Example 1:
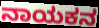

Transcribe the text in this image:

ನಾಯಕನ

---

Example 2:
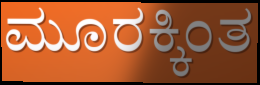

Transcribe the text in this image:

ಮೂರಕ್ಕಿಂತ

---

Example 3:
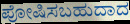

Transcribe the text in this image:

ಪೋಷಿಸಬಹುದಾದ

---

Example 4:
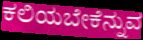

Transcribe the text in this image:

ಕಲಿಯಬೇಕೆನ್ನುವ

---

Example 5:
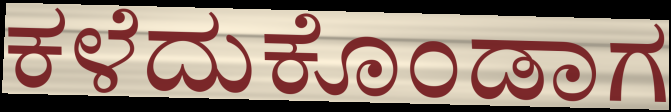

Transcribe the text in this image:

ಕಳೆದುಕೊಂಡಾಗ